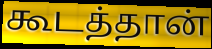
கூடத்தான்